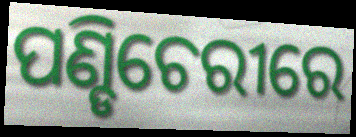
ପଣ୍ଡିଚେରୀରେ